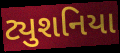
ટ્યુશનિયા